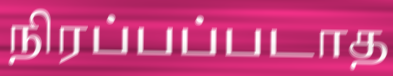
நிரப்பப்படாத